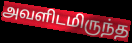
அவளிடமிருந்த